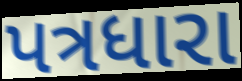
પત્રધારા